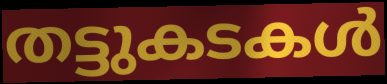
തട്ടുകടകൾ